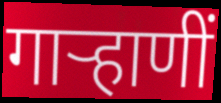
गाऱ्हाणीं